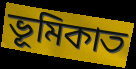
ভূমিকাত